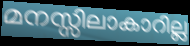
മനസ്സിലാകാറില്ല